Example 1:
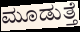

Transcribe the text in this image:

ಮೂಡುತ್ತೆ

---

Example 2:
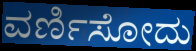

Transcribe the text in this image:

ವರ್ಣಿಸೋದು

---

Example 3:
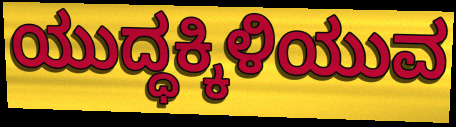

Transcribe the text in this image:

ಯುದ್ಧಕ್ಕಿಳಿಯುವ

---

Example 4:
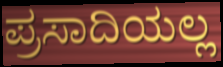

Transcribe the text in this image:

ಪ್ರಸಾದಿಯಲ್ಲ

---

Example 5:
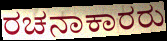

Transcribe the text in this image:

ರಚನಾಕಾರರು